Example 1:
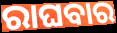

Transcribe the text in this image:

ରାଘବାର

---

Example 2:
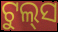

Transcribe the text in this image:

ଟୁଲ୍‌ସ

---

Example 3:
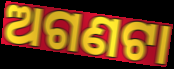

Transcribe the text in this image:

ଅଗଣଟା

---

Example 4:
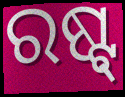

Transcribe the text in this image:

ରଷ୍ଟ୍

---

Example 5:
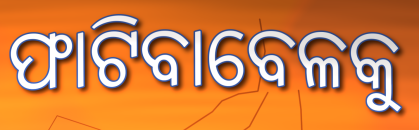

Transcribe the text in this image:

ଫାଟିବାବେଳକୁ